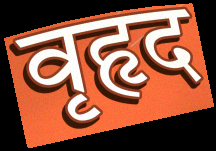
वृहृद